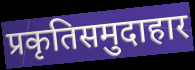
प्रकृतिसमुदाहार